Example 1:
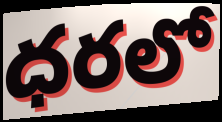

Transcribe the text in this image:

ధరలో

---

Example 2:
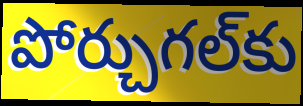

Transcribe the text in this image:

పోర్చుగల్‌కు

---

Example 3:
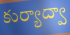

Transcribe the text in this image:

కుర్యాద్వా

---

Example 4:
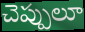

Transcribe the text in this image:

చెప్పులూ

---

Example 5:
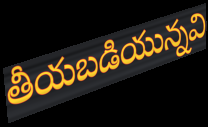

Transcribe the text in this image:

తీయబడియున్నవి